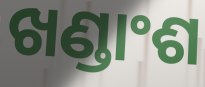
ଖଣ୍ଡାଂଶ